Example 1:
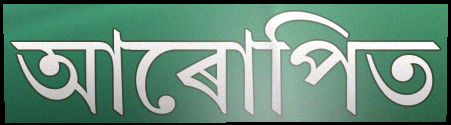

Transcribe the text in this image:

আৰোপিত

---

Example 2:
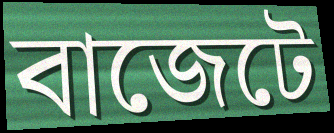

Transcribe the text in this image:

বাজেটে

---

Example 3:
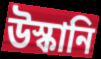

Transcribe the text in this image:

উস্কানি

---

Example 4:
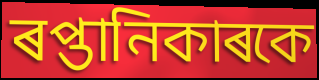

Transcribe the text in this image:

ৰপ্তানিকাৰকে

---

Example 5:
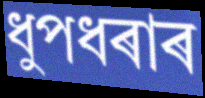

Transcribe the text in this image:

ধুপধৰাৰ